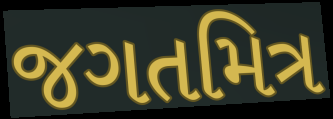
જગતમિત્ર